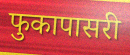
फुकापासरी